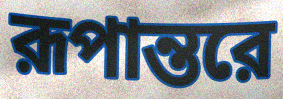
রূপান্তরে